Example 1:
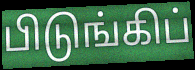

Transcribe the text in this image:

பிடுங்கிப்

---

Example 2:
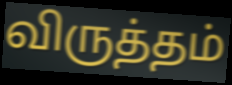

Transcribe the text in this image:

விருத்தம்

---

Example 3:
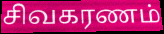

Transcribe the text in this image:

சிவகரணம்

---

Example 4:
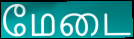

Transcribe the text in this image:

மேடை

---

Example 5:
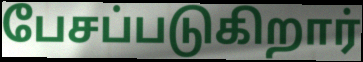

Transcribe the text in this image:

பேசப்படுகிறார்